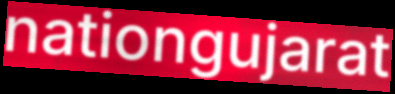
nationgujarat